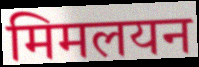
मिमलयन